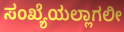
ಸಂಖ್ಯೆಯಲ್ಲಾಗಲೀ